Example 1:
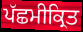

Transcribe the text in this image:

ਪੱਛਮੀਕ੍ਰਿਤ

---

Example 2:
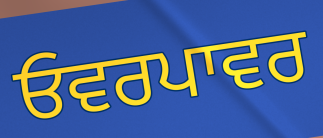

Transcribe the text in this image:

ਓਵਰਪਾਵਰ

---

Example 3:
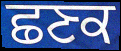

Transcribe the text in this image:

ਛਣਕ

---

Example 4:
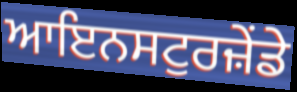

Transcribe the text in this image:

ਆਇਨਸਟੁਰਜ਼ੇਂਡੇ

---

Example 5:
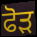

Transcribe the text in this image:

ਫੋਡ਼